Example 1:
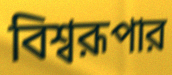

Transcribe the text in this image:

বিশ্বরূপার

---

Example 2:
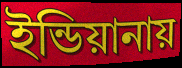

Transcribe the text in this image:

ইন্ডিয়ানায়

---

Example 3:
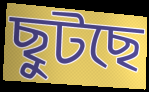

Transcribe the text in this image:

ছুটছে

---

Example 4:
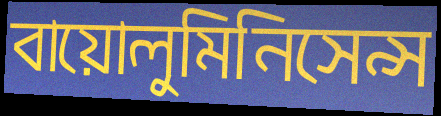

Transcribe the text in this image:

বায়োলুমিনিসেন্স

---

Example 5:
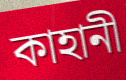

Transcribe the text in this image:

কাহানী